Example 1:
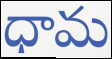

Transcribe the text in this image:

ధామ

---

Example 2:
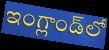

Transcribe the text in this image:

ఇంగ్లాండ్‌లో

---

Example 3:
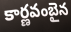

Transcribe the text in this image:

కార్ణవంబైన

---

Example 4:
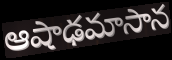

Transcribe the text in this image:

ఆషాఢమాసాన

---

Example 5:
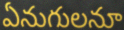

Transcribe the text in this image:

ఏనుగులనూ